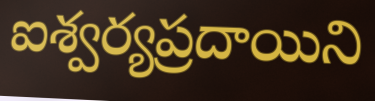
ఐశ్వర్యప్రదాయిని